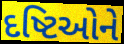
દષ્ટિઓને